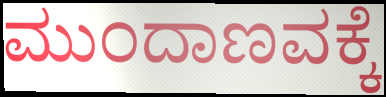
ಮುಂದಾಣವಕ್ಕೆ